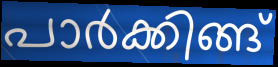
പാർക്കിങ്ങ്